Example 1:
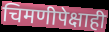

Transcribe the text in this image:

चिमणीपेक्षाही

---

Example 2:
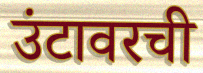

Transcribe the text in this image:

उंटावरची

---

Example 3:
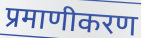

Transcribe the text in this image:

प्रमाणीकरण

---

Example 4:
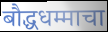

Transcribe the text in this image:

बौद्धधम्माचा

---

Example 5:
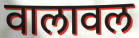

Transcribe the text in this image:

वालावल